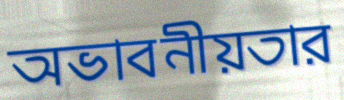
অভাবনীয়তার